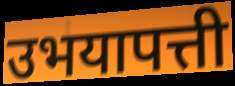
उभयापत्ती